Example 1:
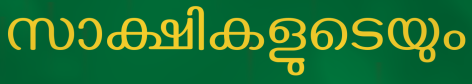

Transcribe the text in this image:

സാക്ഷികളുടെയും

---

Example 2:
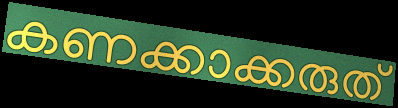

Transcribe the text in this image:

കണക്കാക്കരുത്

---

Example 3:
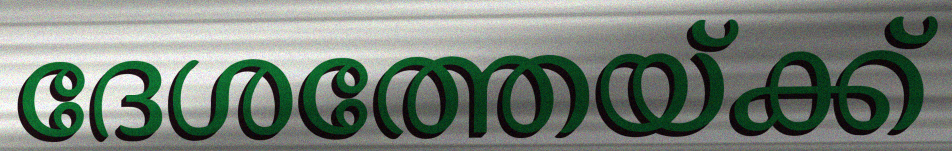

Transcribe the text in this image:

ദേശത്തേയ്ക്ക്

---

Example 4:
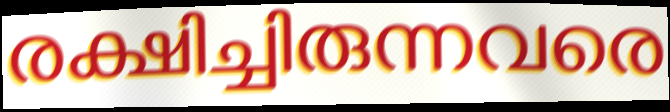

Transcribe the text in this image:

രക്ഷിച്ചിരുന്നവരെ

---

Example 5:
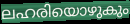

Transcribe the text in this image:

ലഹരിയൊഴുകും